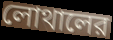
লোথালের